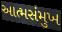
આત્મસંમુખ